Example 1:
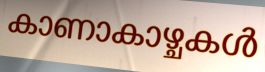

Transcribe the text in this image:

കാണാകാഴ്ചകൾ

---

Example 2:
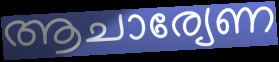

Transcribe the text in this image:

ആചാര്യേണ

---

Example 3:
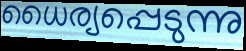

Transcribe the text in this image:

ധൈര്യപ്പെടുന്നു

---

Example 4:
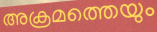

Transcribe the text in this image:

അക്രമത്തെയും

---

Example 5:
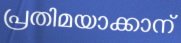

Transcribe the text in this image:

പ്രതിമയാക്കാന്